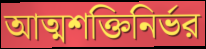
আত্মশক্তিনির্ভর